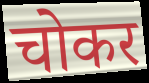
चोकर